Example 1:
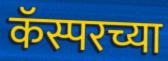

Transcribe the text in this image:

कॅस्परच्या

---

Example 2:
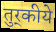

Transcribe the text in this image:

तुर्कीये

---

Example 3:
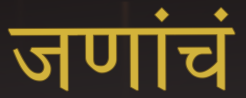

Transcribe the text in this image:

जणांचं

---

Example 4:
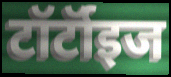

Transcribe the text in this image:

टॉर्टॉइज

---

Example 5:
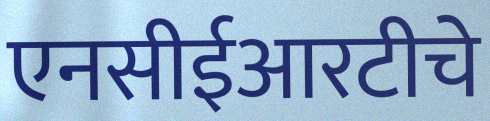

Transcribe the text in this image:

एनसीईआरटीचे